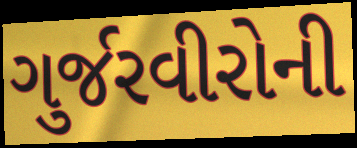
ગુર્જરવીરોની